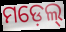
ମଡ଼େଲ୍